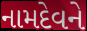
નામદેવને